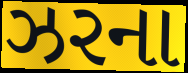
ઝરના